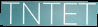
TNTET